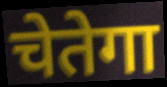
चेतेगा